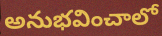
అనుభవించాలో